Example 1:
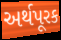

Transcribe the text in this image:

અર્થપૂરક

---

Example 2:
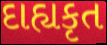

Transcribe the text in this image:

દાહ્યકૃત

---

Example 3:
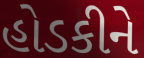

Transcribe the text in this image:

હોડકીને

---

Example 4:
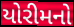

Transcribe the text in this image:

યોરીમનો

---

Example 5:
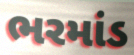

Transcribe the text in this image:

ભરમાંડ